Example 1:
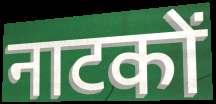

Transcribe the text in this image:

नाटकों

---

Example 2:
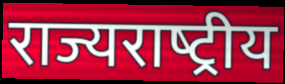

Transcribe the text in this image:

राज्यराष्ट्रीय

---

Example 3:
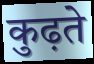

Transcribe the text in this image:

कुढ़ते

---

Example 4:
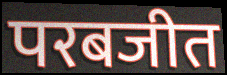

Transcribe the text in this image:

परबजीत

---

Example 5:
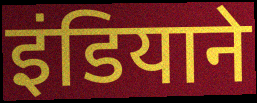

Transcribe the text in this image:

इंडियाने